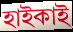
হাইকাই